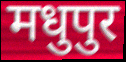
मधुपुर